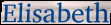
Elisabeth